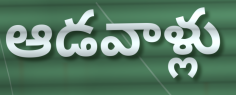
ఆడవాళ్లు